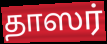
தாஸர்